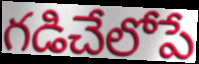
గడిచేలోపే